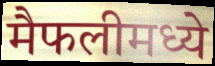
मैफलीमध्ये